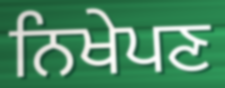
ਨਿਖੇਪਣ